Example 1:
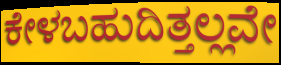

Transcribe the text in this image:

ಕೇಳಬಹುದಿತ್ತಲ್ಲವೇ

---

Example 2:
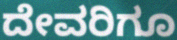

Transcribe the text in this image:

ದೇವರಿಗೂ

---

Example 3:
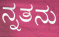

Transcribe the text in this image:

ನ್ನತನು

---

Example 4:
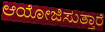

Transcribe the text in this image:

ಆಯೋಜಿಸುತ್ತಾರೆ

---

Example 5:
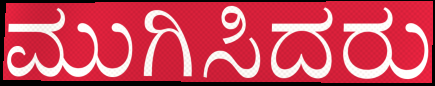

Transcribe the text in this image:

ಮುಗಿಸಿದರು